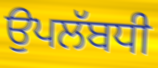
ਉਪਲੱਬਧੀ